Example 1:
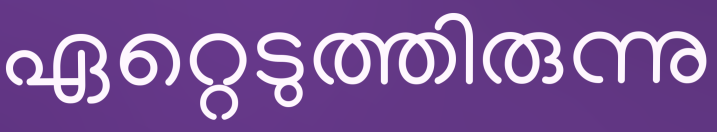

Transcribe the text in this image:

ഏറ്റെടുത്തിരുന്നു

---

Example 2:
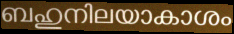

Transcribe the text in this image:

ബഹുനിലയാകാശം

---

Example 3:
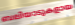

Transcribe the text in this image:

ബലിയാടുകളായ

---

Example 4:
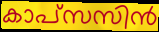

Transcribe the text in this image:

കാപ്സസിൻ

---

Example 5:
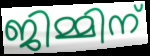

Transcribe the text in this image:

ജിമ്മിന്